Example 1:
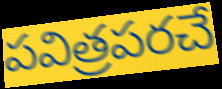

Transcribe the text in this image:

పవిత్రపరచే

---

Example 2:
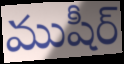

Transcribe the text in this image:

ముషీర్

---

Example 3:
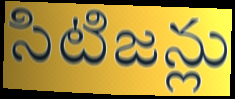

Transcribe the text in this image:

సిటిజన్లు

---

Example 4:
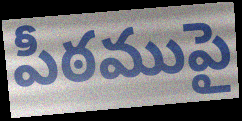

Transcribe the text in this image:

పీఠముపై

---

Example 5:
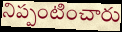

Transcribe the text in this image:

నిప్పంటించారు